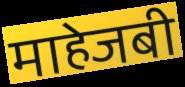
माहेजबी